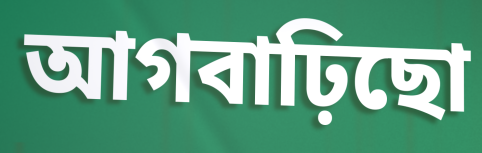
আগবাঢ়িছো